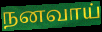
நனவாய்